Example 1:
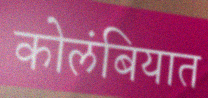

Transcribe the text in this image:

कोलंबियात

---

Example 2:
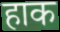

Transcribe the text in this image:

हाक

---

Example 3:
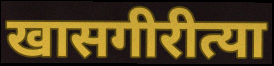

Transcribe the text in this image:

खासगीरीत्या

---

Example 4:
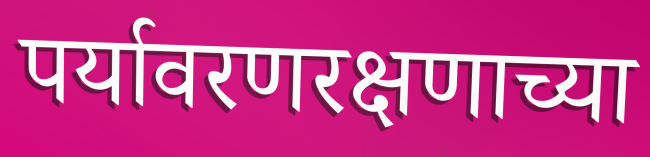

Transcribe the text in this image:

पर्यावरणरक्षणाच्या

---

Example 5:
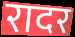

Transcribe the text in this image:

रादर